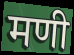
मणी